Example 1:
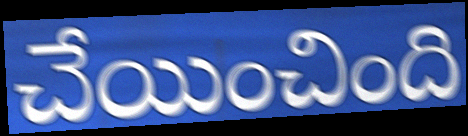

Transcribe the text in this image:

చేయించింది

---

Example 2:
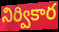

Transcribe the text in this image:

నిర్వికార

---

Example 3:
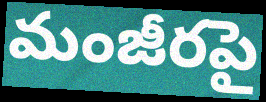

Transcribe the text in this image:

మంజీరపై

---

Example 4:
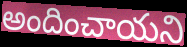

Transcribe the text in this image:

అందించాయని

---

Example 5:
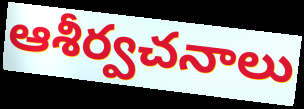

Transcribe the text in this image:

ఆశీర్వచనాలు